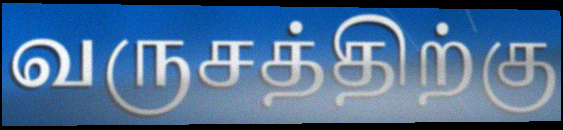
வருசத்திற்கு